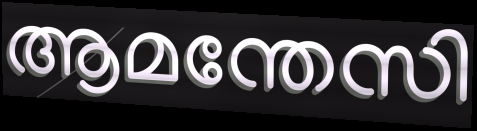
ആമന്തേസി